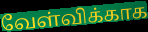
வேள்விக்காக